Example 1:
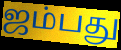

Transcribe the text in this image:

ஜம்பது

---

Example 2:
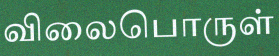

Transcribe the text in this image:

விலைபொருள்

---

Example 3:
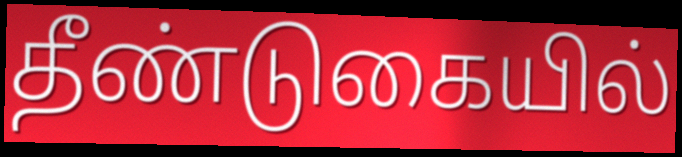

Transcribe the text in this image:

தீண்டுகையில்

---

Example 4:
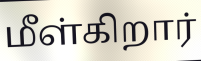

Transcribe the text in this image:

மீள்கிறார்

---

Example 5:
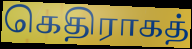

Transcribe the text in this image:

கெதிராகத்